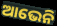
ଆଭେନି